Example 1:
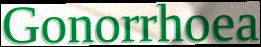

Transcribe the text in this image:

Gonorrhoea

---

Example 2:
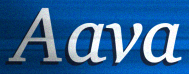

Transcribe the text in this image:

Aava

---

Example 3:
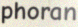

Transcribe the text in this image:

phoran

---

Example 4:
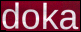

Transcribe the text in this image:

doka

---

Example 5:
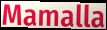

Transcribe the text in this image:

Mamalla